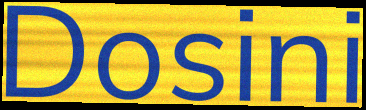
Dosini